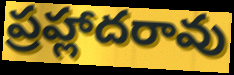
ప్రహ్లాదరావు